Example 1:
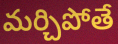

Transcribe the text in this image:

మర్చిపోతే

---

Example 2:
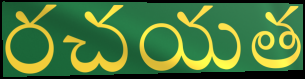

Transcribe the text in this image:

రచయత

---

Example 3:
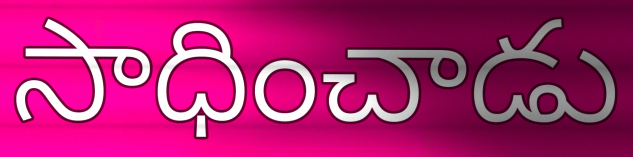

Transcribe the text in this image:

సాధించాడు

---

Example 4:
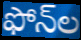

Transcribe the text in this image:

ఫోన్‌ల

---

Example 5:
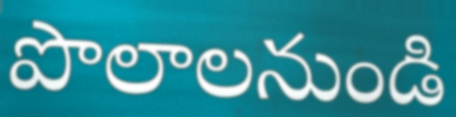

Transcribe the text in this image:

పొలాలనుండి